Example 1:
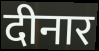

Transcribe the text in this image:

दीनार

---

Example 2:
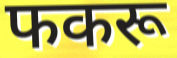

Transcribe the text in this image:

फकरू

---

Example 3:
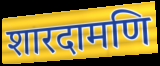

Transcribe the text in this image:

शारदामणि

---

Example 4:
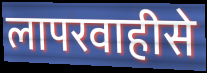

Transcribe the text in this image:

लापरवाहीसे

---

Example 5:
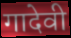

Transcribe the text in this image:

गादेवी